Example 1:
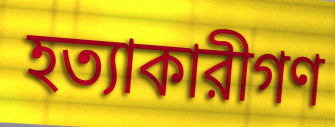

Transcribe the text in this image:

হত্যাকারীগণ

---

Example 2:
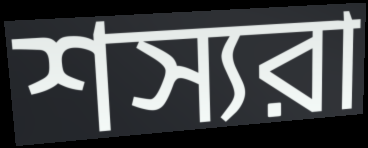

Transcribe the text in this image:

শস্যরা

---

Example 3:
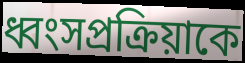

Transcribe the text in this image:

ধ্বংসপ্রক্রিয়াকে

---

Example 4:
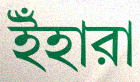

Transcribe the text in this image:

ইঁহারা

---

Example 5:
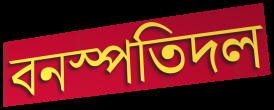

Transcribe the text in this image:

বনস্পতিদল